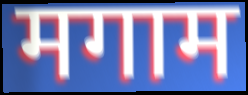
मगाम